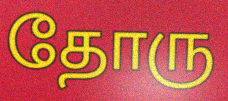
தோரு